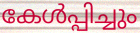
കേൾപ്പിച്ചും